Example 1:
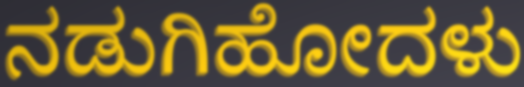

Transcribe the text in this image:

ನಡುಗಿಹೋದಳು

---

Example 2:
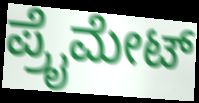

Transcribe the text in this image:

ಪ್ರೈಮೇಟ್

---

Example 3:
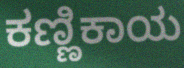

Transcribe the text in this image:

ಕಣ್ಣಿಕಾಯ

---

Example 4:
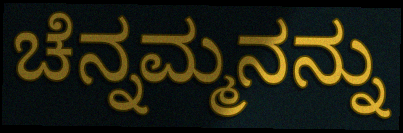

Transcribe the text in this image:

ಚೆನ್ನಮ್ಮನನ್ನು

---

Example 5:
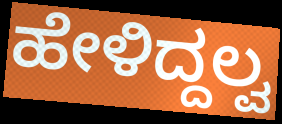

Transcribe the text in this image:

ಹೇಳಿದ್ದಲ್ವ